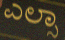
ಎಲ್ಸಾ